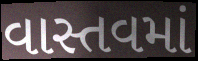
વાસ્તવમાં